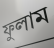
ফুলাম